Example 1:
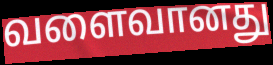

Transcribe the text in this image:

வளைவானது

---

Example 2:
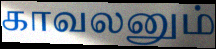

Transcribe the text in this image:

காவலனும்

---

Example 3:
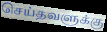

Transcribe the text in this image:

செய்தவளுக்கு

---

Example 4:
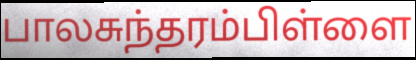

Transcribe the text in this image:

பாலசுந்தரம்பிள்ளை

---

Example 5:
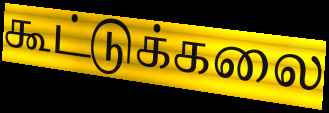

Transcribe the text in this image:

கூட்டுக்கலை